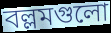
বল্লমগুলো